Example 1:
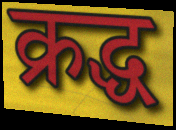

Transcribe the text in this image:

क्रद्ध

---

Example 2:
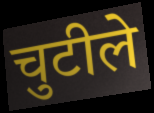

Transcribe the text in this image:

चुटीले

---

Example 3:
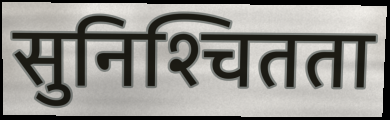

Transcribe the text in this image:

सुनिश्चितता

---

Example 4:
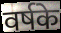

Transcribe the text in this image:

वर्षके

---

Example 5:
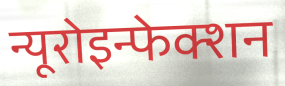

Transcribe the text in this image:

न्यूरोइन्फेक्शन